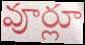
వూర్లూ